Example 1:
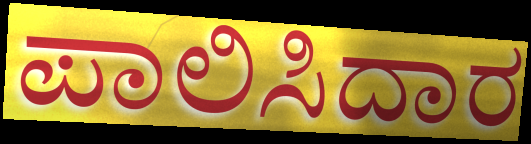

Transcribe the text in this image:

ಪಾಲಿಸಿದಾರ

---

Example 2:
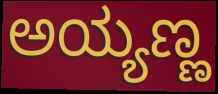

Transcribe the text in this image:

ಅಯ್ಯಣ್ಣ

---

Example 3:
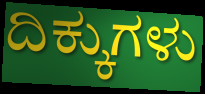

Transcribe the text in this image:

ದಿಕ್ಕುಗಳು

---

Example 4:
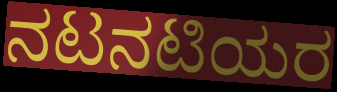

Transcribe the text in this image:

ನಟನಟಿಯರ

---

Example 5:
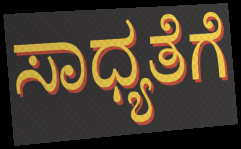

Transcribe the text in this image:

ಸಾಧ್ಯತೆಗೆ